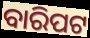
ବାରିପଟ